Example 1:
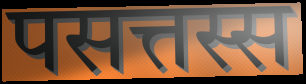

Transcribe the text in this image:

पसत्तस्स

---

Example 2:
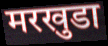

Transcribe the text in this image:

मरखुडा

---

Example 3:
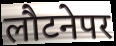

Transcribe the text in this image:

लौटनेपर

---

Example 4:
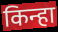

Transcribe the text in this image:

किन्हा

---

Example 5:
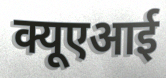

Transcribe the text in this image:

क्यूएआई